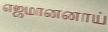
எஜமானனாய்